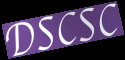
DSCSC